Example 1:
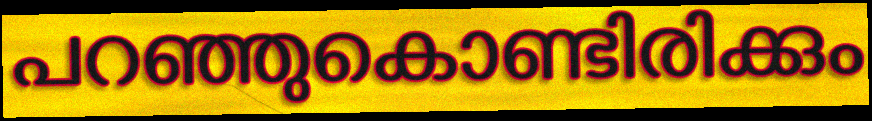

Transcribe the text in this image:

പറഞ്ഞുകൊണ്ടിരിക്കും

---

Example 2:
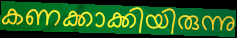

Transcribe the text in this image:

കണക്കാക്കിയിരുന്നു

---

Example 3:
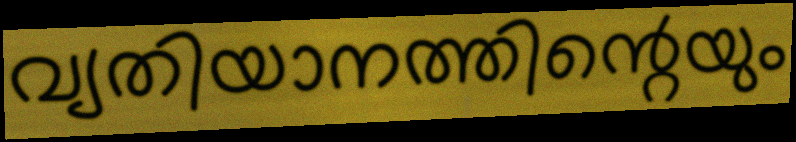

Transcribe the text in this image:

വ്യതിയാനത്തിന്റെയും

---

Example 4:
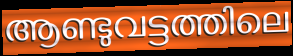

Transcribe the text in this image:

ആണ്ടുവട്ടത്തിലെ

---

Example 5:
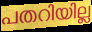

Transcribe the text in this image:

പതറിയില്ല